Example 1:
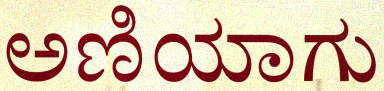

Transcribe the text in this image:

ಅಣಿಯಾಗು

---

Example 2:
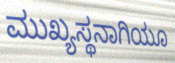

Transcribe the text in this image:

ಮುಖ್ಯಸ್ಥನಾಗಿಯೂ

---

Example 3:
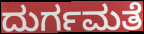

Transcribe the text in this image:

ದುರ್ಗಮತೆ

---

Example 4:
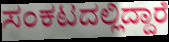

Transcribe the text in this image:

ಸಂಕಟದಲ್ಲಿದ್ದಾರೆ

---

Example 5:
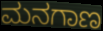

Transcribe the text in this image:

ಮನಗಾಣ